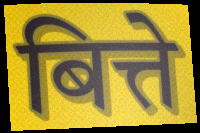
बित्ते